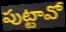
పుట్టావో